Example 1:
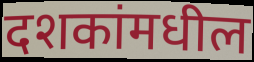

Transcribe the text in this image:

दशकांमधील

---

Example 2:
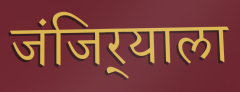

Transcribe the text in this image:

जंजिर्याला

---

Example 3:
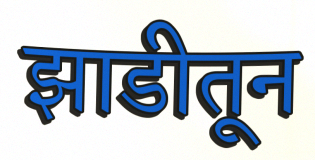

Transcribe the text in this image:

झाडीतून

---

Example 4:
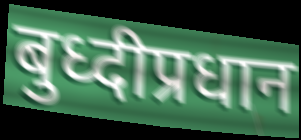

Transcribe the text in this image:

बुध्दीप्रधान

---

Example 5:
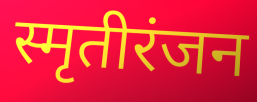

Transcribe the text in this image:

स्मृतीरंजन